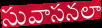
సువాసనలా